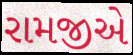
રામજીએ